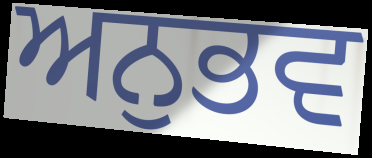
ਅਨੁਭਵ